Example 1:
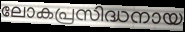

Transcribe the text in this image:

ലോകപ്രസിദ്ധനായ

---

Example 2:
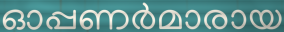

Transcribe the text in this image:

ഓപ്പണർമാരായ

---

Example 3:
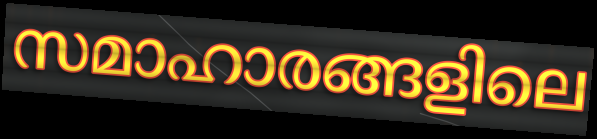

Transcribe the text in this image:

സമാഹാരങ്ങളിലെ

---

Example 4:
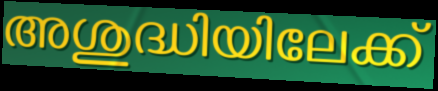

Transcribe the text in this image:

അശുദ്ധിയിലേക്ക്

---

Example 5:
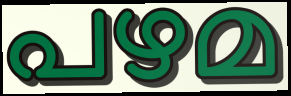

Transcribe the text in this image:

പഴമ